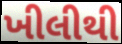
ખીલીથી